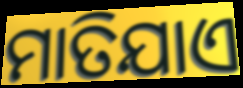
ମାତିଯାଏ